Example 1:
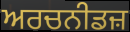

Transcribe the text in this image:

ਅਰਚਨੀਡਜ਼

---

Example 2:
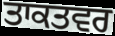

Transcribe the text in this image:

ਤਾਕਤਵਰ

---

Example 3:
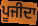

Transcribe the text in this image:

ਪੂਜੀਦਾ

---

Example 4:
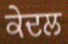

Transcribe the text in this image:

ਕੇਦਲ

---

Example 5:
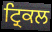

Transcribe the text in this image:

ਟ੍ਰਿਕਲ